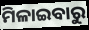
ମିଳାଇବାରୁ